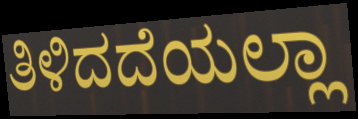
ತಿಳಿದದೆಯಲ್ಲಾ